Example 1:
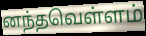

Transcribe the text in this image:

னந்தவெள்ளம்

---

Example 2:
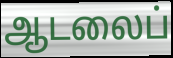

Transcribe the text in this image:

ஆடலைப்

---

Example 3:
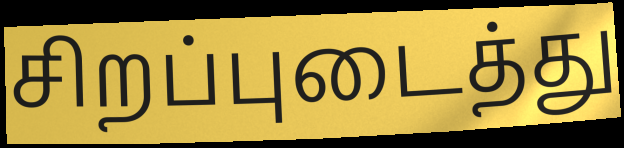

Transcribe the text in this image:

சிறப்புடைத்து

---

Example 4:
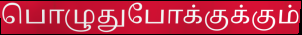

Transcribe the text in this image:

பொழுதுபோக்குக்கும்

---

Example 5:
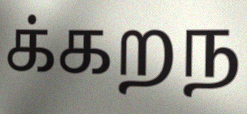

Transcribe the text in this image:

க்கறந